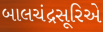
બાલચંદ્રસૂરિએ